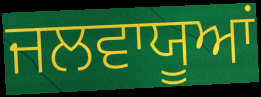
ਜਲਵਾਯੂਆਂ